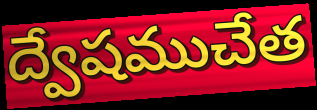
ద్వేషముచేత